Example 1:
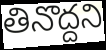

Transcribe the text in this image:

తినొద్దని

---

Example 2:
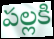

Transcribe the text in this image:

పల్లకి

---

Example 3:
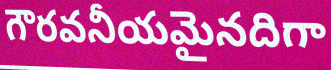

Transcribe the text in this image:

గౌరవనీయమైనదిగా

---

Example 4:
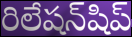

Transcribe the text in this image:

రిలేషన్‌షిప్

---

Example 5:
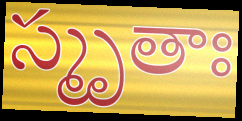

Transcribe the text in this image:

స్మృతాః